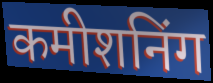
कमीशनिंग